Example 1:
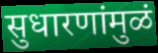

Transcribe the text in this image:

सुधारणांमुळं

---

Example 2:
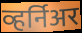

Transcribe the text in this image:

व्हर्निअर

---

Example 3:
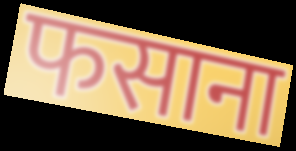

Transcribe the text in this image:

फसाना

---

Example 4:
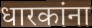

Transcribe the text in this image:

धारकांना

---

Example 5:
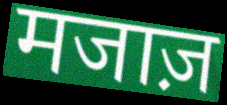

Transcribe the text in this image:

मजाज़